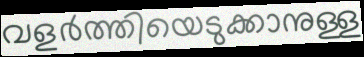
വളർത്തിയെടുക്കാനുള്ള